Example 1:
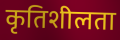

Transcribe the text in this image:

कृतिशीलता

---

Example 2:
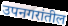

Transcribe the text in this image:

उपनगरांतील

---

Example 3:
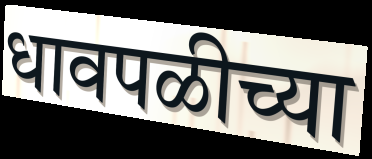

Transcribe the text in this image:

धावपळीच्या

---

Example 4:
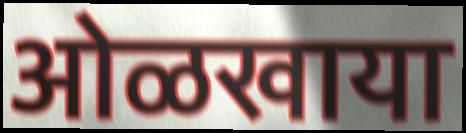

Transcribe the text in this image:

ओळखाया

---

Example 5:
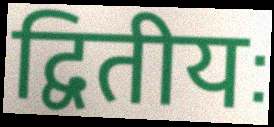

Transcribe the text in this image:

द्वितीयः